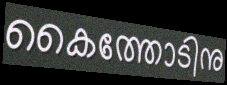
കൈത്തോടിനു